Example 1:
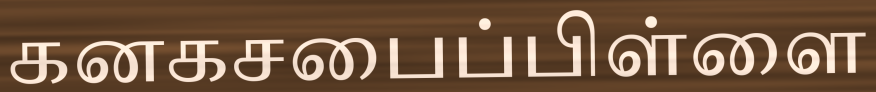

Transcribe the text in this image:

கனகசபைப்பிள்ளை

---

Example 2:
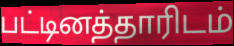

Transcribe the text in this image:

பட்டினத்தாரிடம்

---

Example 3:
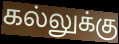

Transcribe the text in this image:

கல்லுக்கு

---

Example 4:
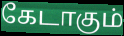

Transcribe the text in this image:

கேடாகும்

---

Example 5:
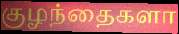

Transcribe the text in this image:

குழந்தைகளா